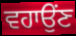
ਵਹਾਉਂਣ